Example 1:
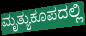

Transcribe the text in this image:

ಮೃತ್ಯುಕೂಪದಲ್ಲಿ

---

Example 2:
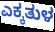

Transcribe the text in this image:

ಎಕ್ಕತುಳ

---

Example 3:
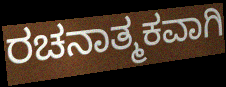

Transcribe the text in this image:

ರಚನಾತ್ಮಕವಾಗಿ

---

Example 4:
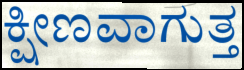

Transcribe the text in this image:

ಕ್ಷೀಣವಾಗುತ್ತ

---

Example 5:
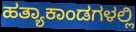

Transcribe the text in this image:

ಹತ್ಯಾಕಾಂಡಗಳಲ್ಲಿ